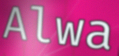
Alwa